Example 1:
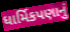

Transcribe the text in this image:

ધાર્મિકપણાનું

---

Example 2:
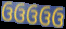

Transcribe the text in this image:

ઉઉઉઉઉ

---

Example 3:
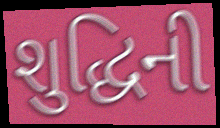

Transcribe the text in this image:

શુદ્ધિની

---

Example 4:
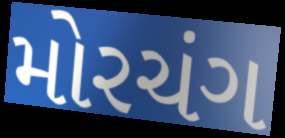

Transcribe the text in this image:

મોરચંગ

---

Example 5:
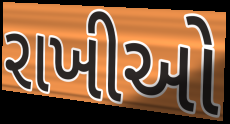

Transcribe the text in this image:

રાખીઓ